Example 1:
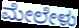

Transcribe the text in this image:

ಮೇಲೇಳು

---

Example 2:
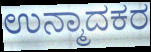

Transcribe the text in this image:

ಉನ್ಮಾದಕರ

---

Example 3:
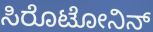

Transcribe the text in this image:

ಸಿರೊಟೋನಿನ್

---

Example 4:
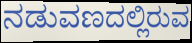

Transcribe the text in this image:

ನಡುವಣದಲ್ಲಿರುವ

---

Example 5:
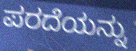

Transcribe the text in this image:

ಪರದೆಯನ್ನು